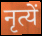
नृत्यें